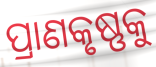
ପ୍ରାଣକୃଷ୍ଣକୁ